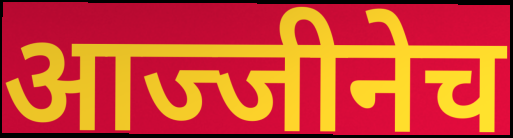
आज्जीनेच